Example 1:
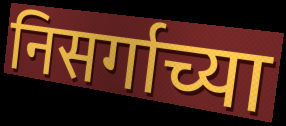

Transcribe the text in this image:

निसर्गाच्या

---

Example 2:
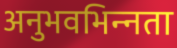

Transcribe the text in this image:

अनुभवभिन्नता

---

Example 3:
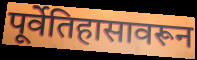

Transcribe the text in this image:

पूर्वेतिहासावरून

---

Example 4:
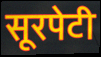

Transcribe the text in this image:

सूरपेटी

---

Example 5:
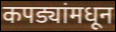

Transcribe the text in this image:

कपड्यांमधून